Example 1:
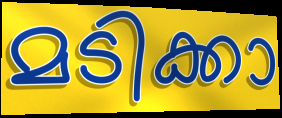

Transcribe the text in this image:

മടിക്കാ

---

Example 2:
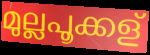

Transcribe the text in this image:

മുല്ലപൂക്കള്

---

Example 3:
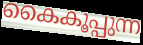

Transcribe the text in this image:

കൈകൂപ്പുന്ന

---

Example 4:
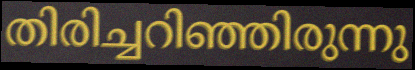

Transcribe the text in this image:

തിരിച്ചറിഞ്ഞിരുന്നു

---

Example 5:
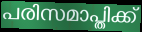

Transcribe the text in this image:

പരിസമാപ്തിക്ക്